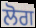
ਲੋਗ